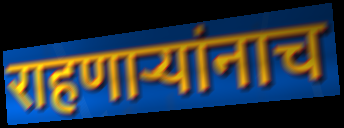
राहणाऱ्यांनाच